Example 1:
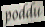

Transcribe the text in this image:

poddu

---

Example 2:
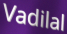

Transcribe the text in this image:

Vadilal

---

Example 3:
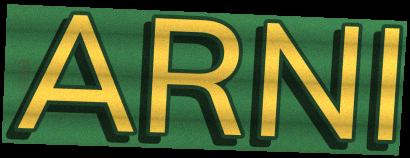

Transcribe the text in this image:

ARNI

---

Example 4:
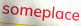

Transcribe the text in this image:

someplace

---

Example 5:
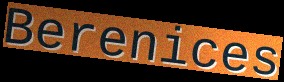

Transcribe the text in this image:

Berenices